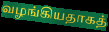
வழங்கியதாகத்